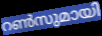
റൺസുമായി